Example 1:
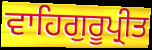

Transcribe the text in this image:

ਵਾਹਿਗੁਰੂਪ੍ਰੀਤ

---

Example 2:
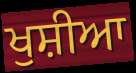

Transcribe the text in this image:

ਖੁਸ਼ੀਆ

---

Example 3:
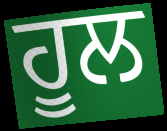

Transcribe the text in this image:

ਹੂਲ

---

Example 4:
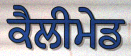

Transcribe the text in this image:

ਕੈਲੀਮੇਡ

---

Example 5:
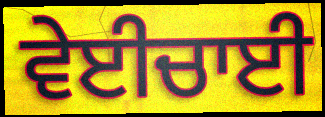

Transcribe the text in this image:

ਵੇਈਚਾਈ